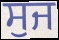
ਸੁਜ